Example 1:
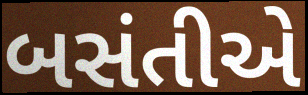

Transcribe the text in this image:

બસંતીએ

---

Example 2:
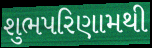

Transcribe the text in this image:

શુભપરિણામથી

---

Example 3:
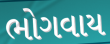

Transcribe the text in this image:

ભોગવાય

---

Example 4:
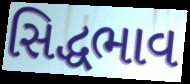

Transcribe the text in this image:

સિદ્ધભાવ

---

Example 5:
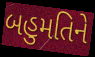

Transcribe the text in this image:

બહુમતિને